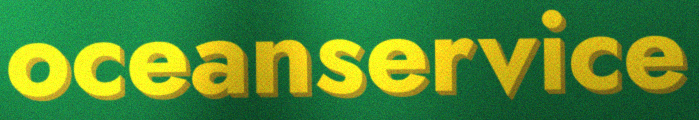
oceanservice